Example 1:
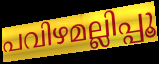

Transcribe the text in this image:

പവിഴമല്ലിപ്പൂ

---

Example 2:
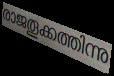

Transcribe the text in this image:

രാജതൂക്കത്തിന്നു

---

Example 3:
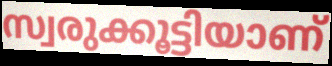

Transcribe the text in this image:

സ്വരുക്കൂട്ടിയാണ്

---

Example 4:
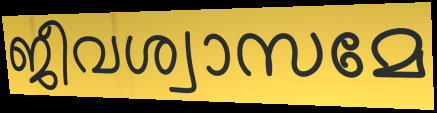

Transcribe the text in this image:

ജീവശ്വാസമേ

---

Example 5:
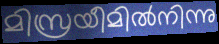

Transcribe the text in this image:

മിസ്രയീമിൽനിന്നു